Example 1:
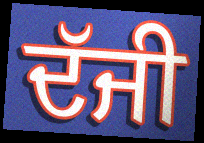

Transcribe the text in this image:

ਦੱਜੀ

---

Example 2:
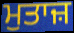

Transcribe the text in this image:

ਮੁਤਾਜ਼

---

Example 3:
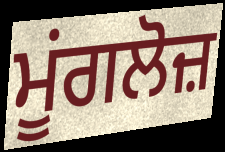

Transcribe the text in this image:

ਮੂਂਗਲੋਜ਼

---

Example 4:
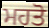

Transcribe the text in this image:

ਮਹਤੋ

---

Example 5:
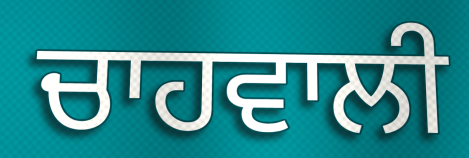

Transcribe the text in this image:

ਚਾਹਵਾਲੀ